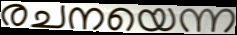
രചനയെന്ന